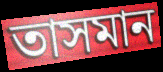
তাসমান